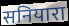
सनियारा